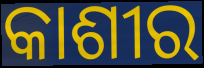
କାଶୀର